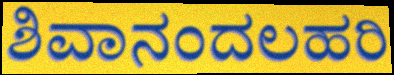
ಶಿವಾನಂದಲಹರಿ